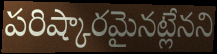
పరిష్కారమైనట్లేనని